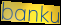
banku